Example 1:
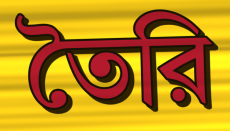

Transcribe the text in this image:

তৈরি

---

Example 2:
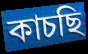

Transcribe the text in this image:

কাচছি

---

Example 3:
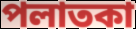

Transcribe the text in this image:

পলাতকা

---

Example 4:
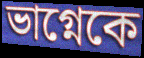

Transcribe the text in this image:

ভাগ্নেকে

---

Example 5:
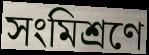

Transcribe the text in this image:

সংমিশ্রণে